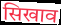
सिखाव